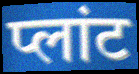
प्‍लांट